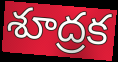
శూద్రక